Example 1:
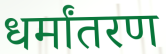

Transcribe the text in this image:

धर्मांतरण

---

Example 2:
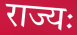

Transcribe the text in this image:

राज्यः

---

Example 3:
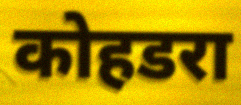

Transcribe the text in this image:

कोहडरा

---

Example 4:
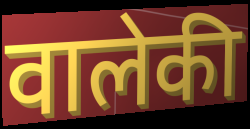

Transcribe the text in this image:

वालेकी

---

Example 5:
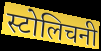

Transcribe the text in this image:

स्टोलिचनी